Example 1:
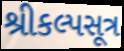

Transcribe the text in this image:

શ્રીકલ્પસૂત્ર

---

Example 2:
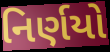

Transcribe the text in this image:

નિર્ણયો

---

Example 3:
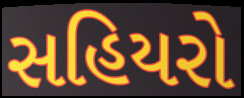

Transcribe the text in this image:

સહિયરો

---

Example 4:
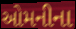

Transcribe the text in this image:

ઓમનીના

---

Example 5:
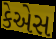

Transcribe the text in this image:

કેએસ